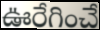
ఊరేగించే